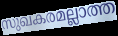
സുഖകരമല്ലാത്ത